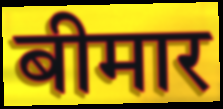
बीमार